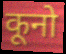
कूनो